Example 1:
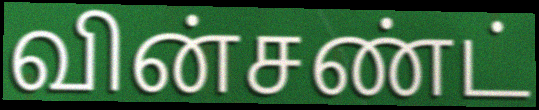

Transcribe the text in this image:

வின்சண்ட்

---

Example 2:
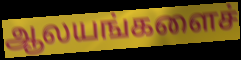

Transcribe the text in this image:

ஆலயங்களைச்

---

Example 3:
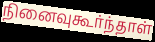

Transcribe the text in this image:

நினைவுகூர்ந்தாள்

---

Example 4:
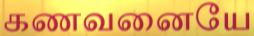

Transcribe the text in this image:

கணவனையே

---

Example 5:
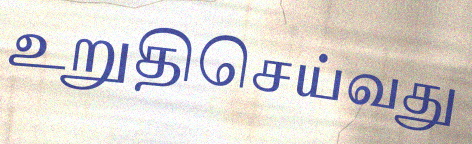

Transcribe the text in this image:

உறுதிசெய்வது